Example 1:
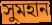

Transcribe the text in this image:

সুমহান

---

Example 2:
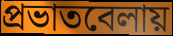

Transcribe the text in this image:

প্রভাতবেলায়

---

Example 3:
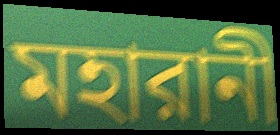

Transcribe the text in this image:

মহারানী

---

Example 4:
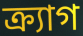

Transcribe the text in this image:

ক্র্যাগ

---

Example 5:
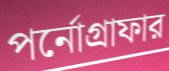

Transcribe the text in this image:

পর্নোগ্রাফার